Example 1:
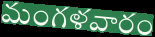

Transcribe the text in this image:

మంగళవారం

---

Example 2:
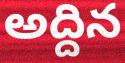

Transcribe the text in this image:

అద్దిన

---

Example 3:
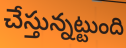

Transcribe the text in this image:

చేస్తున్నట్టుంది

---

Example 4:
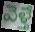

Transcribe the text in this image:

వెళ్తే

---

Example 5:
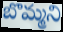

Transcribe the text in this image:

బొమ్మని